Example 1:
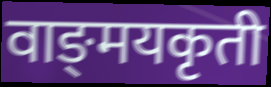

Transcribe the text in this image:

वाङ्‌मयकृती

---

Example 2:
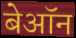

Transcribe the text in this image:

बेऑन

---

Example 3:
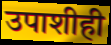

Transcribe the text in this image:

उपाशीही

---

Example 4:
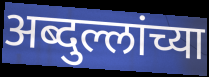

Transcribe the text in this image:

अब्दुल्लांच्या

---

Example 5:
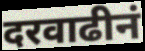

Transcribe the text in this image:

दरवाढीनं